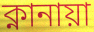
ক্নানায়া